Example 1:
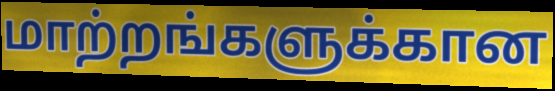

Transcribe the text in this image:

மாற்றங்களுக்கான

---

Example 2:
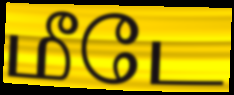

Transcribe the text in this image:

மீடே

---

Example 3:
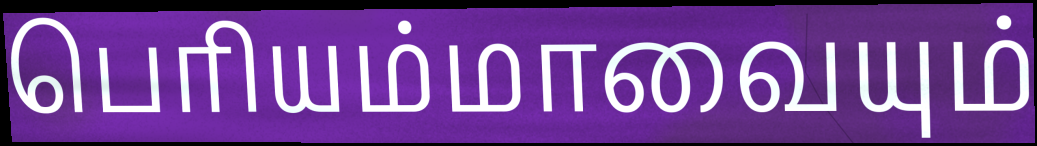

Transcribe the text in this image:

பெரியம்மாவையும்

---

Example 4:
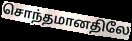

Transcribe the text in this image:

சொந்தமானதிலே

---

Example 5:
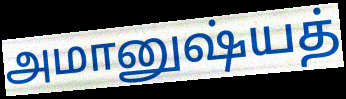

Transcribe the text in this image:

அமானுஷ்யத்